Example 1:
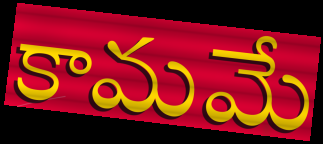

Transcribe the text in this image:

కామమే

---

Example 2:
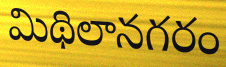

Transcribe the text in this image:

మిథిలానగరం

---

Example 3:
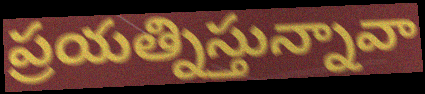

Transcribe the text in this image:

ప్రయత్నిస్తున్నావా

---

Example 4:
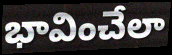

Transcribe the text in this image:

భావించేలా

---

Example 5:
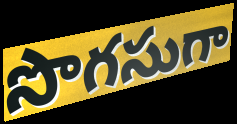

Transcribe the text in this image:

సొగసుగా